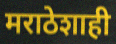
मराठेशाही